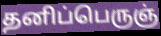
தனிப்பெருஞ்